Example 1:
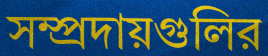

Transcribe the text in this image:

সম্প্রদায়গুলির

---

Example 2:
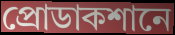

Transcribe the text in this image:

প্রোডাকশানে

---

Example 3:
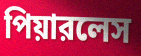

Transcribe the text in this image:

পিয়ারলেস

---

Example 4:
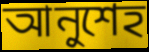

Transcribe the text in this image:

আনুশেহ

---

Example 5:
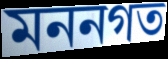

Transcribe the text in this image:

মননগত